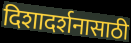
दिशादर्शनासाठी